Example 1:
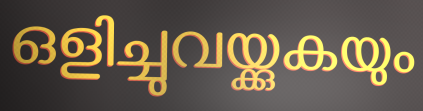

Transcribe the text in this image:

ഒളിച്ചുവയ്ക്കുകയും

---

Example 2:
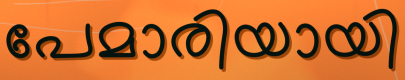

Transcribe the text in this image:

പേമാരിയായി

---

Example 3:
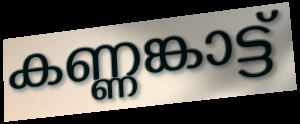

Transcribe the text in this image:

കണ്ണങ്കാട്ട്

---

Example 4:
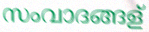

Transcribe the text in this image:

സംവാദങ്ങള്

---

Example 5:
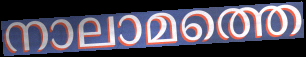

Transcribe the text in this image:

നാലാമത്തെ